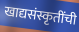
खाद्यसंस्कृतींची